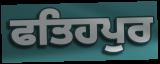
ਫਤਿਹਪੁਰ